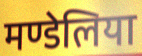
मण्डेलिया